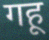
गहू